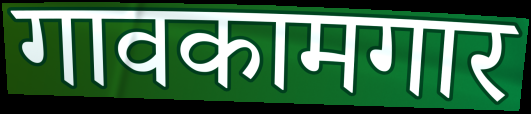
गावकामगार